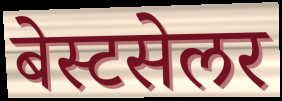
बेस्टसेलर